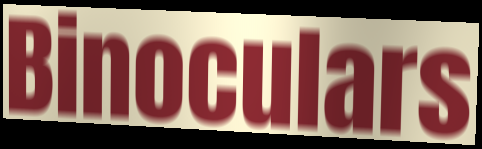
Binoculars